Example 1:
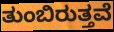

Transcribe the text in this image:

ತುಂಬಿರುತ್ತವೆ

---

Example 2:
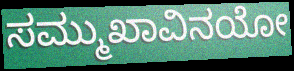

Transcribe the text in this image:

ಸಮ್ಮುಖಾವಿನಯೋ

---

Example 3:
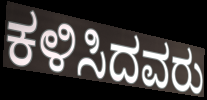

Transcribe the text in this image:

ಕಳಿಸಿದವರು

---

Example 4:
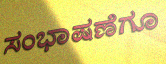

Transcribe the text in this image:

ಸಂಭಾಷಣೆಗೂ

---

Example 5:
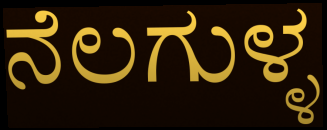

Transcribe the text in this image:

ನೆಲಗುಳ್ಳ